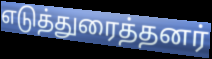
எடுத்துரைத்தனர்